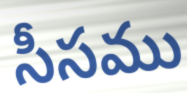
సీసము